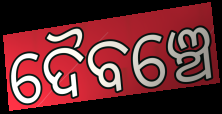
ଦୈବଞ୍ଚେ